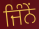
ਜਿੰਨੇਂ